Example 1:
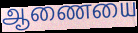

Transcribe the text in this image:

ஆணையை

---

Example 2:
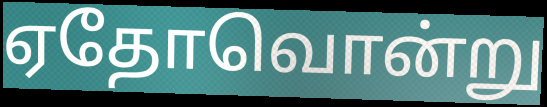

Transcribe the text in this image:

ஏதோவொன்று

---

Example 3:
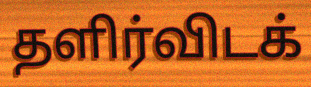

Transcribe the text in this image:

தளிர்விடக்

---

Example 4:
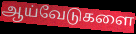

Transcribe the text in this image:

ஆய்வேடுகளை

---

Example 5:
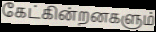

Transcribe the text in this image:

கேட்கின்றனகளும்